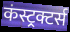
कंस्ट्रक्टर्स